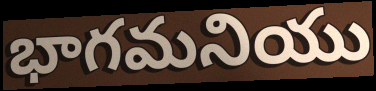
భాగమనియు